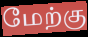
மேற்கு